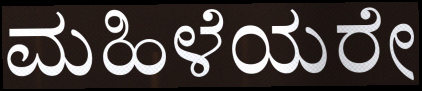
ಮಹಿಳೆಯರೇ